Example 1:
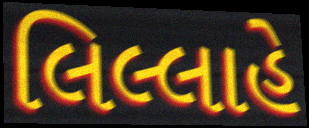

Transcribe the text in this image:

લિલ્લાહે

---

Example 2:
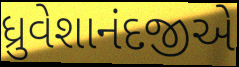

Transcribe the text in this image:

ધ્રુવેશાનંદજીએ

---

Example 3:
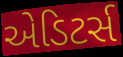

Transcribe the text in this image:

એડિટર્સ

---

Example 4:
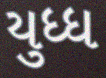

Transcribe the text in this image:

યુધ્ધ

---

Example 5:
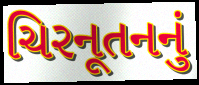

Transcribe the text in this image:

ચિરનૂતનનું